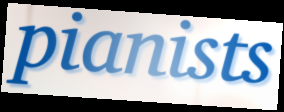
pianists